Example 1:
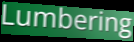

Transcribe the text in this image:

Lumbering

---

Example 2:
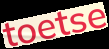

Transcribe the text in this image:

toetse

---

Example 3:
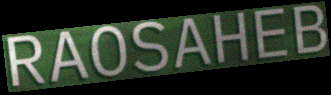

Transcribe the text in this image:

RAOSAHEB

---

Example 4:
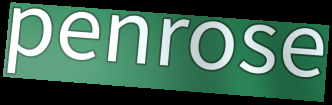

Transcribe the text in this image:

penrose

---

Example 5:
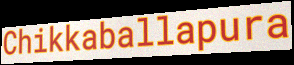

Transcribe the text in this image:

Chikkaballapura